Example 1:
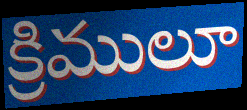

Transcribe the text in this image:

క్రిములూ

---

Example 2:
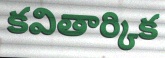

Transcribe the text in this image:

కవితార్కిక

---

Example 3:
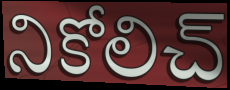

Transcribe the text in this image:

నికోలిచ్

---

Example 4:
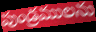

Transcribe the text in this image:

పుండ్రములను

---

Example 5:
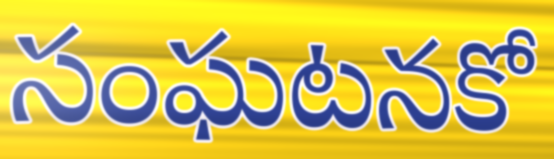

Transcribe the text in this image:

సంఘటనకో